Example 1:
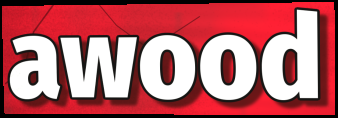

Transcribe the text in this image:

awood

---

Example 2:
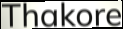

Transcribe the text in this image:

Thakore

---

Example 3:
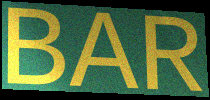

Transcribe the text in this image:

BAR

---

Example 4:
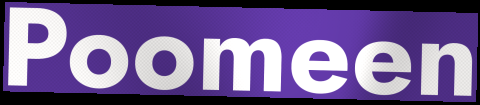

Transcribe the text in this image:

Poomeen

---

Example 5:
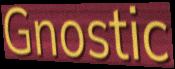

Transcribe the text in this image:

Gnostic